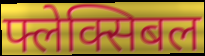
फ्लेक्सिबल